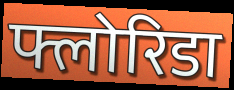
फ्लोरिडा